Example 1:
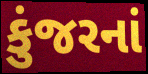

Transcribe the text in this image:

કુંજરનાં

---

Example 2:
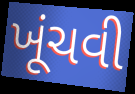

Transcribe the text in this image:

ખૂંચવી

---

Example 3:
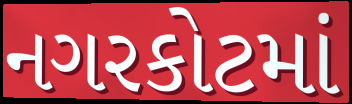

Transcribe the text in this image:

નગરકોટમાં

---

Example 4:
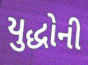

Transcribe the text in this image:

યુદ્ધોની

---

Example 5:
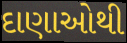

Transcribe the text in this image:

દાણાઓથી